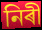
নিৰী